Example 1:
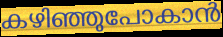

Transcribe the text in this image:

കഴിഞ്ഞുപോകാൻ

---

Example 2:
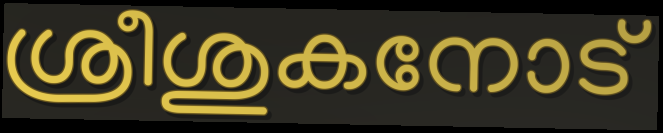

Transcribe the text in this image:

ശ്രീശുകനോട്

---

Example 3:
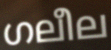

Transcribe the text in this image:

ഗലീല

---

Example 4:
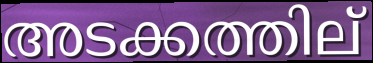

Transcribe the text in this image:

അടക്കത്തില്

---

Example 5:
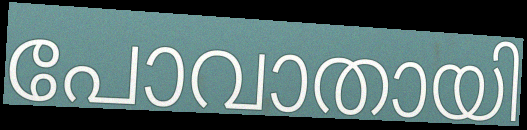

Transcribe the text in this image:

പോവാതായി